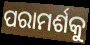
ପରାମର୍ଶକୁ